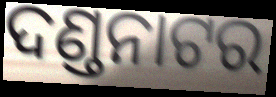
ଦଣ୍ଡନାଟର